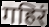
गहिरं